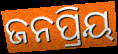
ଜନପ୍ରିୟ